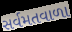
સર્વમતવાળા